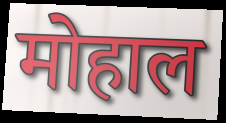
मोहाल